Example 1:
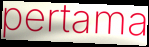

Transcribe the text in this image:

pertama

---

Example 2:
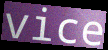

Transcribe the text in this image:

vice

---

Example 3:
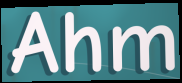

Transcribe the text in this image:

Ahm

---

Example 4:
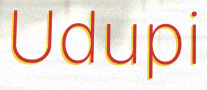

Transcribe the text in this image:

Udupi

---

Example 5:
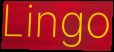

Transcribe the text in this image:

Lingo